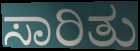
ಸಾರಿತು